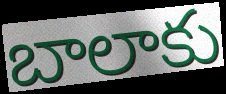
బాలాకు